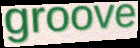
groove